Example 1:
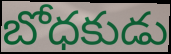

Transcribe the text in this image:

బోధకుడు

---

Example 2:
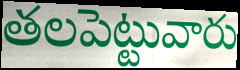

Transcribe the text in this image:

తలపెట్టువారు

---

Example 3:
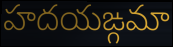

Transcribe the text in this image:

హదయఙ్గమా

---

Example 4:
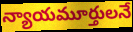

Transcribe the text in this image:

న్యాయమూర్తులనే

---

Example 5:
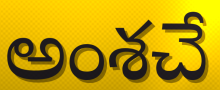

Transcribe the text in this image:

అంశచే